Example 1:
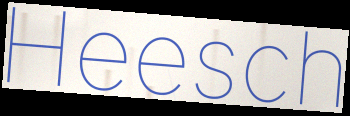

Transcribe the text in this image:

Heesch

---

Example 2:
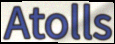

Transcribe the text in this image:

Atolls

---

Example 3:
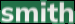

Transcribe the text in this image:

smith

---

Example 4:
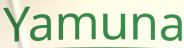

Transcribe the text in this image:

Yamuna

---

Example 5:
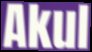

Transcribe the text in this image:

Akul